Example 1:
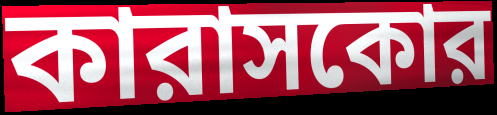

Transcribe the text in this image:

কারাসকোর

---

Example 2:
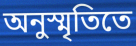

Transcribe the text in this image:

অনুস্মৃতিতে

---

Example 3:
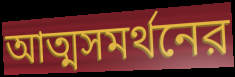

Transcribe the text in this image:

আত্মসমর্থনের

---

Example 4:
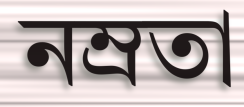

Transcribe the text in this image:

নম্রতা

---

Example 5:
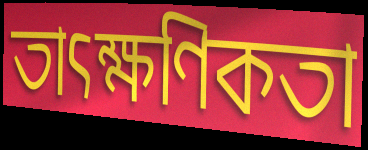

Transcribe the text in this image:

তাৎক্ষণিকতা